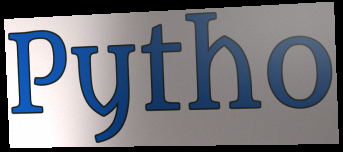
Pytho